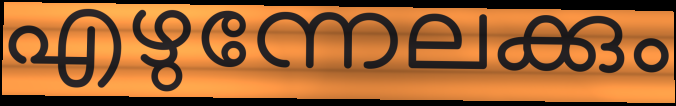
എഴുന്നേലക്കും